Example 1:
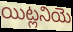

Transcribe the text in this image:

యిట్లనియె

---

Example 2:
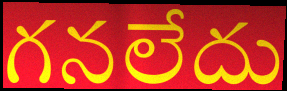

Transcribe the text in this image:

గనలేదు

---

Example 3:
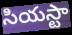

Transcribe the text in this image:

సియస్టా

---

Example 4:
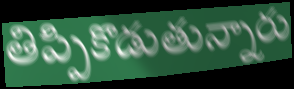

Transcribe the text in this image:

తిప్పికొడుతున్నారు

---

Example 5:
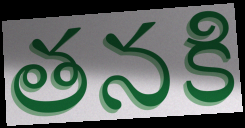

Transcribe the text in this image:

తనకి